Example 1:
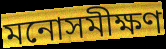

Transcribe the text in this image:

মনোসমীক্ষণ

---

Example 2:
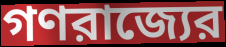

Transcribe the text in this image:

গণরাজ্যের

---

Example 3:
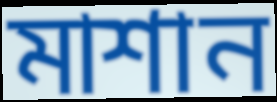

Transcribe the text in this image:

মাশান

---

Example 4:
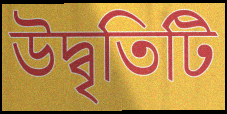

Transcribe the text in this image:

উদ্বৃতিটি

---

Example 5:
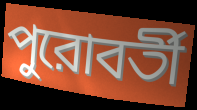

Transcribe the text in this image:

পুরোবর্তী